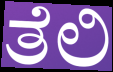
ತೆಲಿ